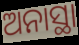
ଅନାସ୍ଥା